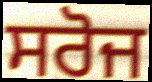
ਸਰੋਜ